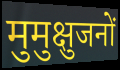
मुमुक्षुजनों